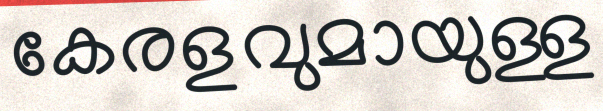
കേരളവുമായുള്ള